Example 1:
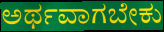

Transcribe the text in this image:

ಅರ್ಥವಾಗಬೇಕು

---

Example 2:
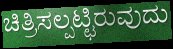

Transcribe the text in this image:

ಚಿತ್ರಿಸಲ್ಪಟ್ಟಿರುವುದು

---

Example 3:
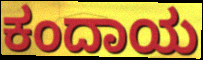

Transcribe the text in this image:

ಕಂದಾಯ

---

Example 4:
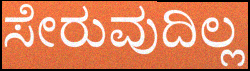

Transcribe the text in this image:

ಸೇರುವುದಿಲ್ಲ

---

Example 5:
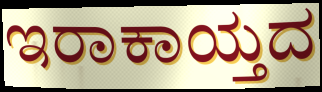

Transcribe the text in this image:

ಇರಾಕಾಯ್ತದ